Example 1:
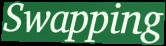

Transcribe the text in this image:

Swapping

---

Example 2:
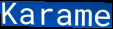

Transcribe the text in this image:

Karame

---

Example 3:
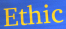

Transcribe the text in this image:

Ethic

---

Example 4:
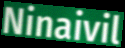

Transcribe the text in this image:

Ninaivil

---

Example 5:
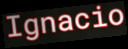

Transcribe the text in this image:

Ignacio